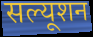
सल्यूशन